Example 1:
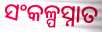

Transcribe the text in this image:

ସଂକଳ୍ପସ୍ନାତ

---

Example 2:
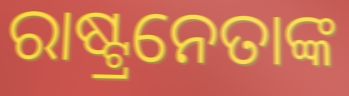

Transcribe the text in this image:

ରାଷ୍ଟ୍ରନେତାଙ୍କ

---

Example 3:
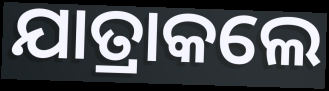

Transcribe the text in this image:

ଯାତ୍ରାକଲେ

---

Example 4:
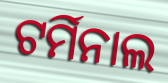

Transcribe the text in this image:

ଟର୍ମିନାଲ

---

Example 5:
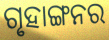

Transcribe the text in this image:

ଗୃହାଙ୍ଗନର